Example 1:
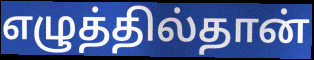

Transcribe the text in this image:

எழுத்தில்தான்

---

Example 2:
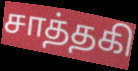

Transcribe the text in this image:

சாத்தகி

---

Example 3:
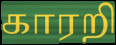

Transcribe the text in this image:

காரறி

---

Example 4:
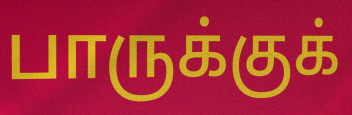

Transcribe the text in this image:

பாருக்குக்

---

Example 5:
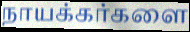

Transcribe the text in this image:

நாயக்கர்களை